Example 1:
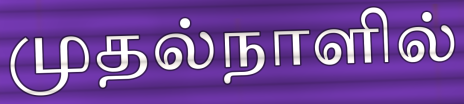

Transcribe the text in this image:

முதல்நாளில்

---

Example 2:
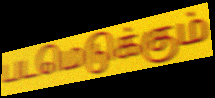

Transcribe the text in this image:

படமெடுக்கும்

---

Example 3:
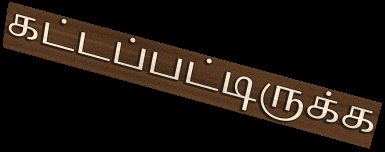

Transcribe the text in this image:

கட்டப்பட்டிருக்க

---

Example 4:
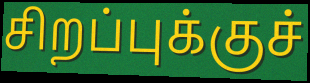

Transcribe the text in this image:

சிறப்புக்குச்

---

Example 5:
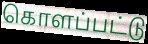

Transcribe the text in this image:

கொளப்பட்டு